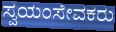
ಸ್ವಯಂಸೇವಕರು